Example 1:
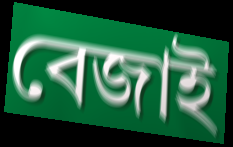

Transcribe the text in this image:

বেজাই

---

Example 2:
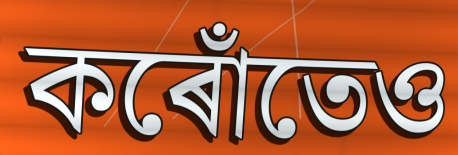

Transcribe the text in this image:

কৰোঁতেও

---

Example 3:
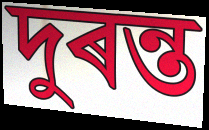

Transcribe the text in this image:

দুৰন্ত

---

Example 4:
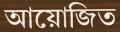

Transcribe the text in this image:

আয়োজিত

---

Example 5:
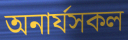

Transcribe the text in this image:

অনাৰ্যসকল